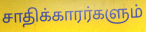
சாதிக்காரர்களும்